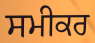
ਸਮੀਕਰ